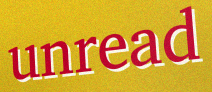
unread